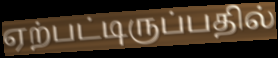
ஏற்பட்டிருப்பதில்